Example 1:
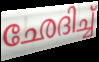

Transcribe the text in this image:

ഛേദിച്ച്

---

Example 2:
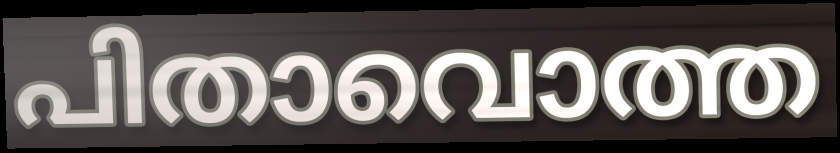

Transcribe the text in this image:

പിതാവൊത്ത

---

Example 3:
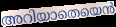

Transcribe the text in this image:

അറിയാതെയെൻ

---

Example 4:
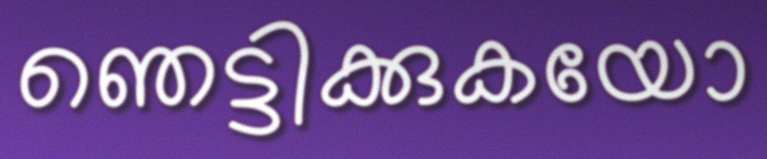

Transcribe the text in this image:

ഞെട്ടിക്കുകയോ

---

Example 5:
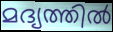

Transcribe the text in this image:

മദ്യത്തിൽ